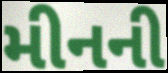
મીનની